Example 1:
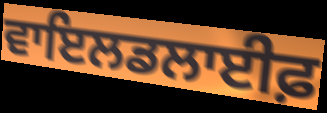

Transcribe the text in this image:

ਵਾਇਲਡਲਾਈਫ਼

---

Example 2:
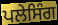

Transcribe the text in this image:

ਪਲੇਸਿੰਗ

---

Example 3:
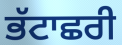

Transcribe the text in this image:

ਭੱਟਾਛਰੀ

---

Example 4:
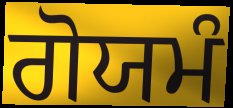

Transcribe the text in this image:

ਗੋਯਮੰ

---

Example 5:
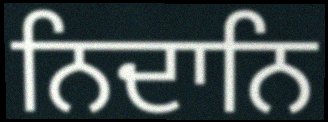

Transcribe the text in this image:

ਨਿਦਾਨਿ